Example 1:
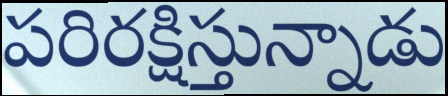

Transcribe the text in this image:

పరిరక్షిస్తున్నాడు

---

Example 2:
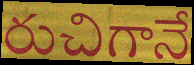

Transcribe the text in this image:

రుచిగానే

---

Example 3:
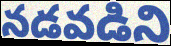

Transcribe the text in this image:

నడవడిని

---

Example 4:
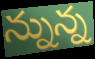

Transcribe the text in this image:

న్నున్న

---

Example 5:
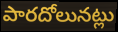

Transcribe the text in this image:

పారదోలునట్లు